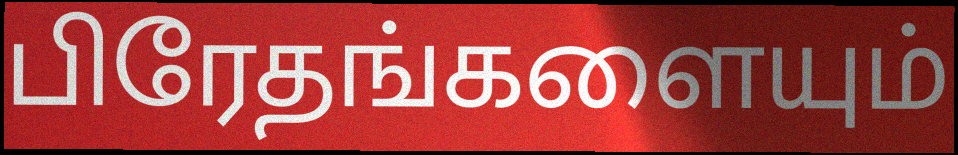
பிரேதங்களையும்